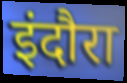
इंदौरा